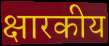
क्षारकीय